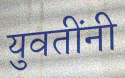
युवतींनी